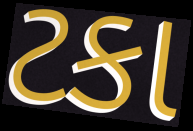
ટકા